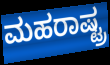
ಮಹರಾಷ್ಟ್ರ